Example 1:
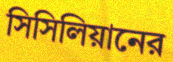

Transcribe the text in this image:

সিসিলিয়ানের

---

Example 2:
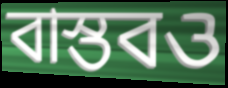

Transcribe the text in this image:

বাস্তবও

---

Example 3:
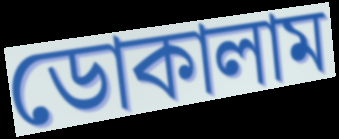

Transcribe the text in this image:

ডোকালাম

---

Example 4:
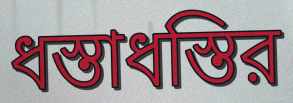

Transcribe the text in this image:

ধস্তাধস্তির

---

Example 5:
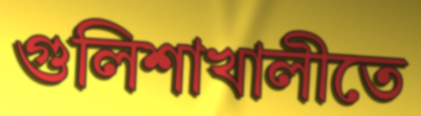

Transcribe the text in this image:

গুলিশাখালীতে